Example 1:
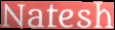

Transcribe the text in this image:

Natesh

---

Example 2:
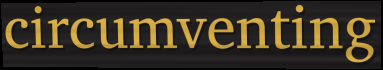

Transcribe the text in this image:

circumventing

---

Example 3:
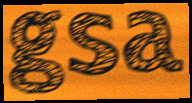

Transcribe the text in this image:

gsa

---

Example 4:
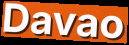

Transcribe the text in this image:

Davao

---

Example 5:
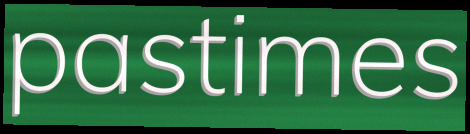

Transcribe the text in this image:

pastimes